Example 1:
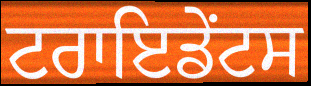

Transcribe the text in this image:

ਟਰਾਇਡੇਂਟਸ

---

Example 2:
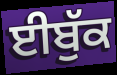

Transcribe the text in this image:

ਈਬੁੱਕ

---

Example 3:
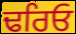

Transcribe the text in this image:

ਢਰਿਓ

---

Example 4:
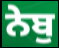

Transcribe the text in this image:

ਨੇਬੁ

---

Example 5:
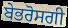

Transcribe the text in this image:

ਬੇਭਰੋਸਗੀ